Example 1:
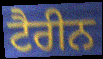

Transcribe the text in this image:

ਟੈਰੀਨ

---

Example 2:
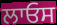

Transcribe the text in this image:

ਲਾਓਸ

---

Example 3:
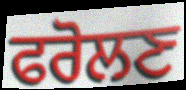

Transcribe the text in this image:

ਫਰੋਲਣ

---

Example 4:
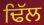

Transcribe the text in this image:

ਢਿੱਲ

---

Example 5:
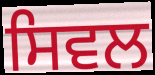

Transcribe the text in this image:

ਸਿਵਲ